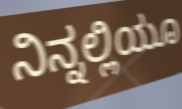
ನಿನ್ನಲ್ಲಿಯೂ